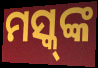
ମସ୍କ୍‌ଙ୍କ